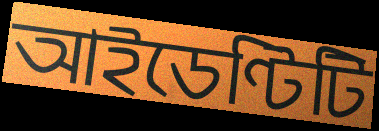
আইডেণ্টিটি